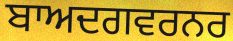
ਬਾਅਦਗਵਰਨਰ